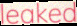
leaked